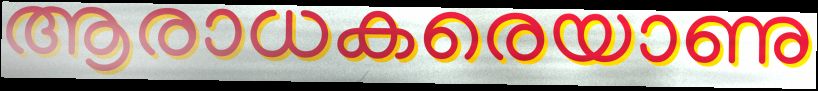
ആരാധകരെയാണു